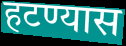
हटण्यास